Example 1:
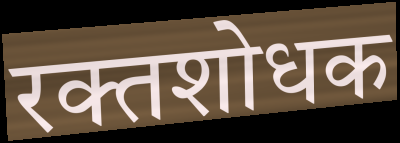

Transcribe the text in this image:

रक्तशोधक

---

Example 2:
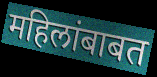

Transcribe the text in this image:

महिलांबाबत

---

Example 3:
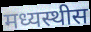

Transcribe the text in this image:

मध्यस्थीस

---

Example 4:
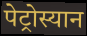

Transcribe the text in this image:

पेट्रोस्यान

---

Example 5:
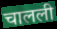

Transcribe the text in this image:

चालली